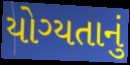
યોગ્યતાનું